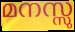
മനസ്സു